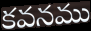
కవనము